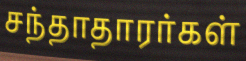
சந்தாதாரர்கள்